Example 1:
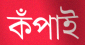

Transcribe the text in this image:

কঁপাই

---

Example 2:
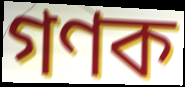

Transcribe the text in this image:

গণক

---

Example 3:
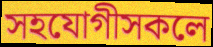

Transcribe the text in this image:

সহযোগীসকলে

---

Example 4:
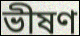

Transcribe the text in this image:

ভীষণ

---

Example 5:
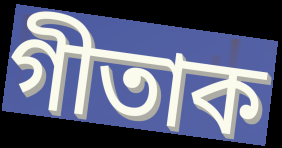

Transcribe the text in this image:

গীতাক